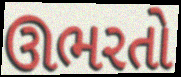
ઊભરતો